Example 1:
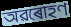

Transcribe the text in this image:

অৱৰোহণ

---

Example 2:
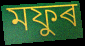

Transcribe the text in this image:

মফুৰ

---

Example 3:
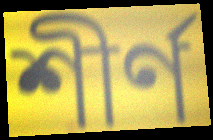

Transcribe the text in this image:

শীৰ্ণ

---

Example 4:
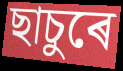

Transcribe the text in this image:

ছাচুৰে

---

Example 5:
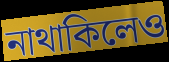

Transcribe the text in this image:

নাথাকিলেও